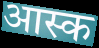
आस्क